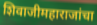
शिवाजीमहाराजांचा